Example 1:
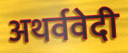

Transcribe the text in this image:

अथर्ववेदी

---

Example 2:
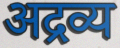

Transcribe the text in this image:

अद्रव्य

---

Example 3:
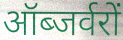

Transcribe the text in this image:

ऑब्जर्वरों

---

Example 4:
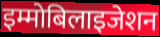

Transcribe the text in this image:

इम्मोबिलाइजेशन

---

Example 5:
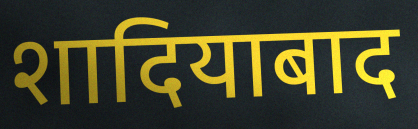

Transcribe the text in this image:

शादियाबाद